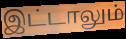
இட்டாலும்